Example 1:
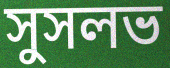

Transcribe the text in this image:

সুসলভ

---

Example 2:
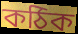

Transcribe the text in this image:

কঠিক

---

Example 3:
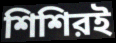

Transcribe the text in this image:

শিশিরই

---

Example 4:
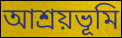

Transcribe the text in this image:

আশ্রয়ভূমি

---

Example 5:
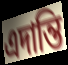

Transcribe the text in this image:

এদান্তি